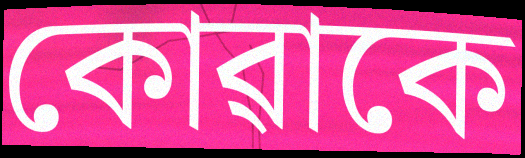
কোৱাকে